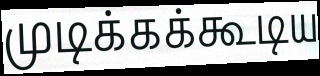
முடிக்கக்கூடிய